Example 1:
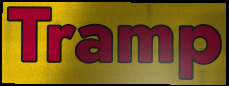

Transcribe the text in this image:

Tramp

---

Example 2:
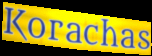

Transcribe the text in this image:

Korachas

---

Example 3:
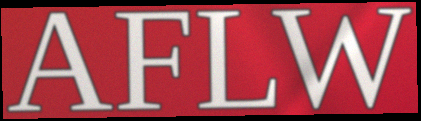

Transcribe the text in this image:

AFLW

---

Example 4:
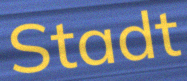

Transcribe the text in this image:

Stadt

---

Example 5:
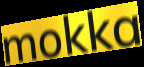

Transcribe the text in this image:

mokka